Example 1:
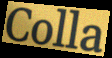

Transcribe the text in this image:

Colla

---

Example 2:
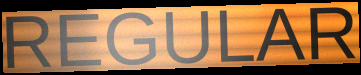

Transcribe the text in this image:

REGULAR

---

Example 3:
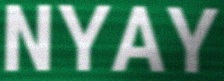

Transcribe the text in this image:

NYAY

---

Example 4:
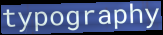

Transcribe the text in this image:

typography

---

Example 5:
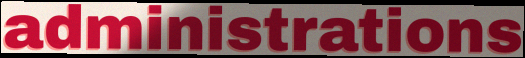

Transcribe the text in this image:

administrations